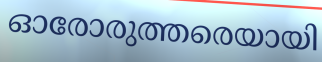
ഓരോരുത്തരെയായി